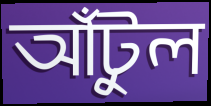
আঁটুল